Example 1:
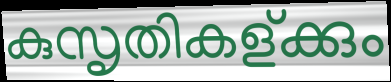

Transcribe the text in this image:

കുസൃതികള്ക്കും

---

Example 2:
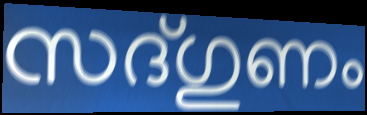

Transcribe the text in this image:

സദ്ഗുണം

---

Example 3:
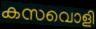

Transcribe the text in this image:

കസവൊളി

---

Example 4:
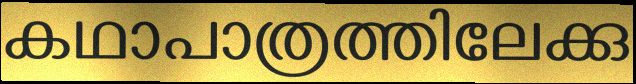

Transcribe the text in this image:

കഥാപാത്രത്തിലേക്കു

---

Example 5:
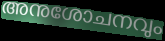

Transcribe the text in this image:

അനുശോചനവും